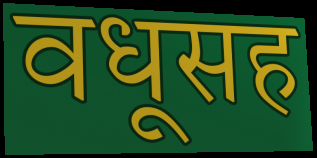
वधूसह